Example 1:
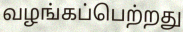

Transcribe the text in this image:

வழங்கப்பெற்றது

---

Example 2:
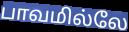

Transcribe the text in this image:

பாவமில்லே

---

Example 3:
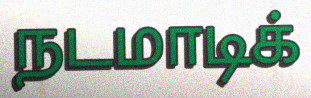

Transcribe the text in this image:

நடமாடிக்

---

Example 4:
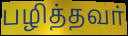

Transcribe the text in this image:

பழித்தவர்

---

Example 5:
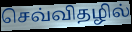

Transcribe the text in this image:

செவ்விதழில்